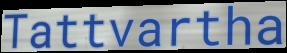
Tattvartha